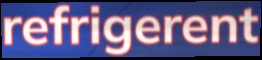
refrigerent